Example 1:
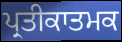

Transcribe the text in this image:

ਪ੍ਰਤੀਕਾਤਮਕ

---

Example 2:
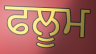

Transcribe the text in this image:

ਫਲੂਮ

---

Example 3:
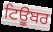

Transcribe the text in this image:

ਟਿਊੁਬਰ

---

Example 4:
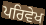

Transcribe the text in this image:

ਪਰਿਵੇਖ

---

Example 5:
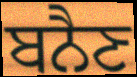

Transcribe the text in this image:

ਬਨੈਣ